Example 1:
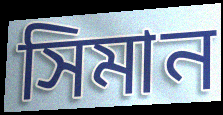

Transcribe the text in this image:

সিমান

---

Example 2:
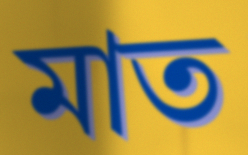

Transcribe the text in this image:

মাত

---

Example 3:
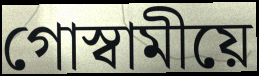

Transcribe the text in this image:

গোস্বামীয়ে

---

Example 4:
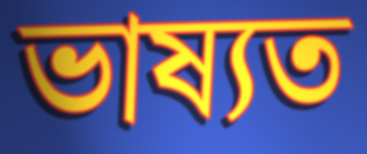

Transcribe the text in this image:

ভাষ্যত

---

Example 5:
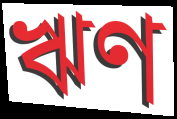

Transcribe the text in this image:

ঋণ